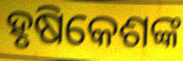
ହୃଷିକେଶଙ୍କ